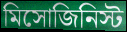
মিসোজিনিস্ট